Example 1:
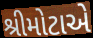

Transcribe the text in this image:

શ્રીમોટાએ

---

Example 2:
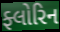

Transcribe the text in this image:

ફ્લોરિન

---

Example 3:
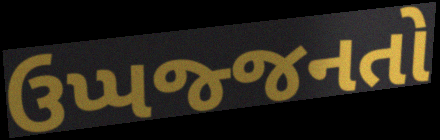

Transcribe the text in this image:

ઉપ્પજ્જનતો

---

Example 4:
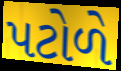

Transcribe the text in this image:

પટોળે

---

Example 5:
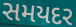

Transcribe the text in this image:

સમયદર